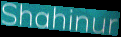
Shahinur